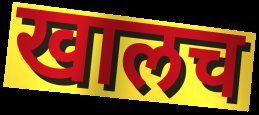
खालच